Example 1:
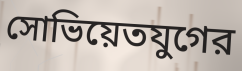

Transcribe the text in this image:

সোভিয়েতযুগের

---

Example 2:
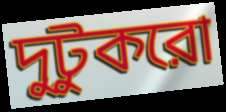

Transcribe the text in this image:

দুটুকরো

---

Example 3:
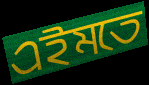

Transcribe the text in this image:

এইমতে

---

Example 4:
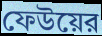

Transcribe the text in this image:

ফেউয়ের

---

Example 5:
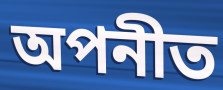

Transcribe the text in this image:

অপনীত